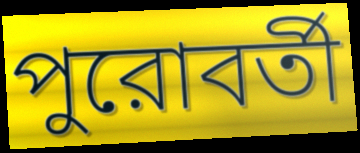
পুরোবর্তী